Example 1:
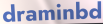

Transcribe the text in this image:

draminbd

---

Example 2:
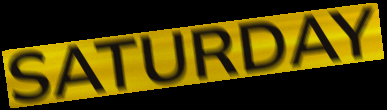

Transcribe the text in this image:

SATURDAY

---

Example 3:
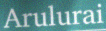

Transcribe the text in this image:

Arulurai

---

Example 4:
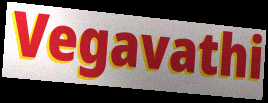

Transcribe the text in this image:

Vegavathi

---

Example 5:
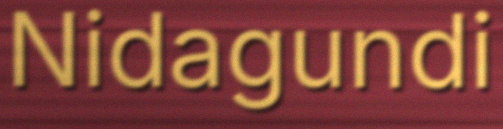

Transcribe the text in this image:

Nidagundi